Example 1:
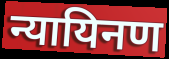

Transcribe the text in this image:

न्यायिनण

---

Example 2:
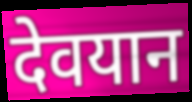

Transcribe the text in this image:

देवयान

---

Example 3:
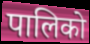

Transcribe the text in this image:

पालिको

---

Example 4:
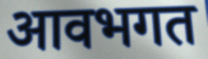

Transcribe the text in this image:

आवभगत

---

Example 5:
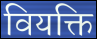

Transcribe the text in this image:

वियक्ति